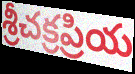
శ్రీచక్రప్రియ